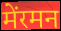
मेंरमन